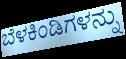
ಬೆಳಕಿಂಡಿಗಳನ್ನು